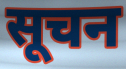
सूचन